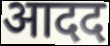
आदद